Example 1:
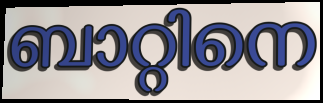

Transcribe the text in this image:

ബാറ്റിനെ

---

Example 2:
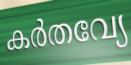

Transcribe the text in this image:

കർതവ്യേ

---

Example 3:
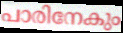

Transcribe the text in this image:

പാരിനേകും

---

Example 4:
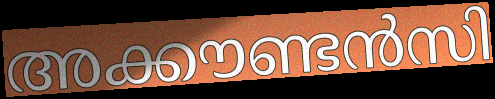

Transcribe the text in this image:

അക്കൗണ്ടൻസി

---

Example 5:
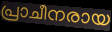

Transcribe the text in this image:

പ്രാചീനരായ